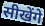
सीखेंगे